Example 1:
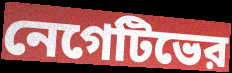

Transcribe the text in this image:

নেগেটিভের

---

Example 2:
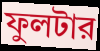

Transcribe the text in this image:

ফুলটার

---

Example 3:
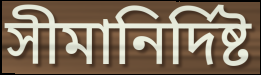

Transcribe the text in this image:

সীমানির্দিষ্ট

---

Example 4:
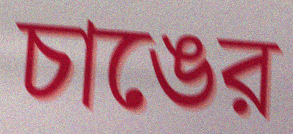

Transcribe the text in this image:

চাঙের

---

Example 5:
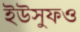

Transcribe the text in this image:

ইউসুফও